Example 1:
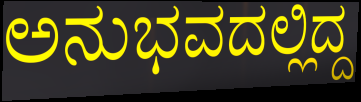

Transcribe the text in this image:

ಅನುಭವದಲ್ಲಿದ್ದ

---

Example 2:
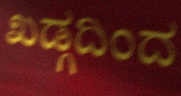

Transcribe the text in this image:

ಖಡ್ಗದಿಂದ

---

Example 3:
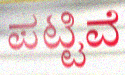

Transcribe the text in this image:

ಪಟ್ಟಿವೆ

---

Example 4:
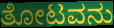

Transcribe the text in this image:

ತೋಟವನು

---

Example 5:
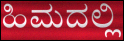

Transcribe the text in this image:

ಹಿಮದಲ್ಲಿ